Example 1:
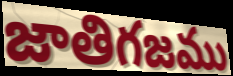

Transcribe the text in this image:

జాతిగజము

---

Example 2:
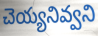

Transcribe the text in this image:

చెయ్యనివ్వని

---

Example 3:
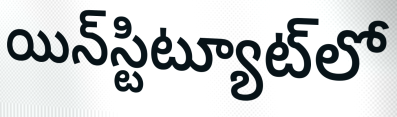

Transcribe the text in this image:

యిన్‌స్టిట్యూట్‌లో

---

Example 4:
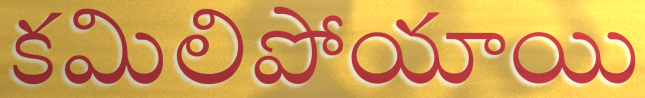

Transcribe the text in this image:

కమిలిపోయాయి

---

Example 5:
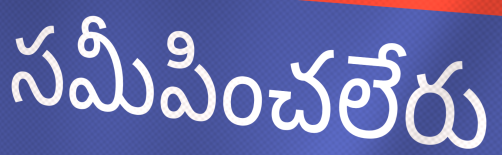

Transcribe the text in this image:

సమీపించలేరు